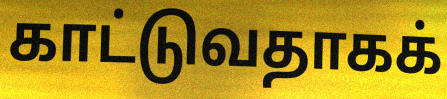
காட்டுவதாகக்